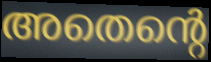
അതെന്റെ